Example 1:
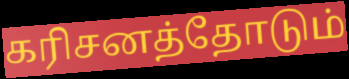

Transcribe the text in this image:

கரிசனத்தோடும்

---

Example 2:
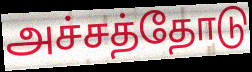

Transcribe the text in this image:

அச்சத்தோடு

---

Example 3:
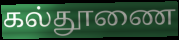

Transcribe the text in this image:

கல்தூணை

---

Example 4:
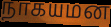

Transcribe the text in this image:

நாகயமன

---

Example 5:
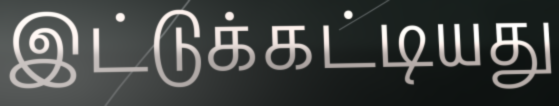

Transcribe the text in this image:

இட்டுக்கட்டியது